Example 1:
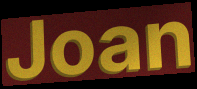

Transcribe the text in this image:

Joan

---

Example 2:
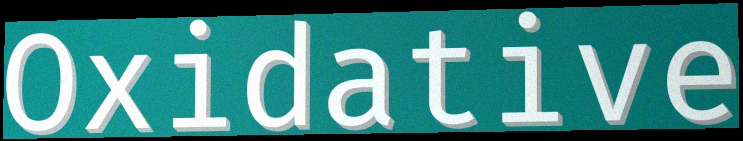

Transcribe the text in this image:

Oxidative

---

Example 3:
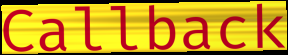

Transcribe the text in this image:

Callback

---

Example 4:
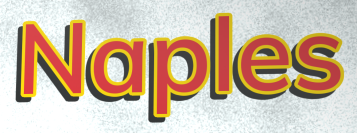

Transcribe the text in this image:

Naples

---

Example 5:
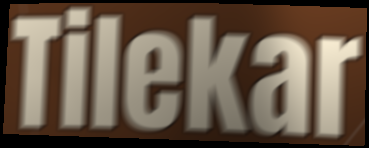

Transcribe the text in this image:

Tilekar